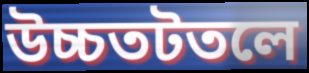
উচ্চতটতলে